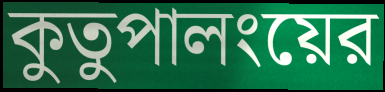
কুতুপালংয়ের